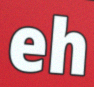
eh